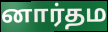
னார்தம